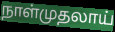
நாள்முதலாய்